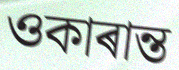
ওকাৰান্ত